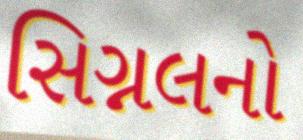
સિગ્નલનો